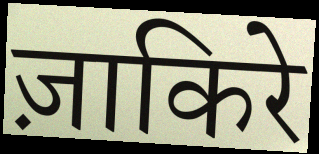
ज़ाकिरे